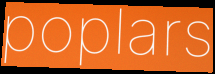
poplars